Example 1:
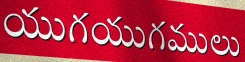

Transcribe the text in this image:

యుగయుగములు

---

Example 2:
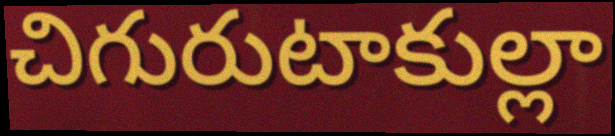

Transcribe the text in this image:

చిగురుటాకుల్లా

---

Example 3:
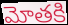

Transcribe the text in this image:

మోతకి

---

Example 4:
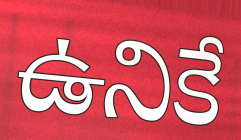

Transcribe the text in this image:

ఉనికే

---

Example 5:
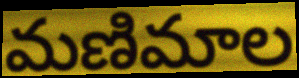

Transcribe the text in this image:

మణిమాల